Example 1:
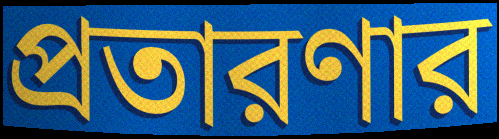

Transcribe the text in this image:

প্রতারণার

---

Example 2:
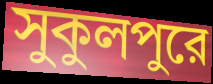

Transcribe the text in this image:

সুকুলপুরে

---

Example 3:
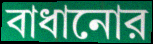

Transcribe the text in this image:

বাধানোর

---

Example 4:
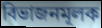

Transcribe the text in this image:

বিভাজনমূলক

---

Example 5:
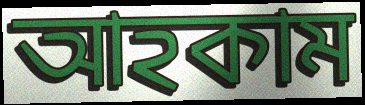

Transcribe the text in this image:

আহকাম